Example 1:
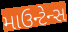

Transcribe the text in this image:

માઉન્ટેન્સ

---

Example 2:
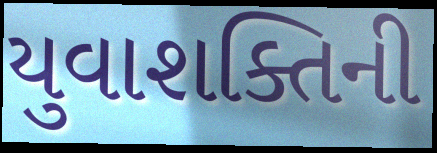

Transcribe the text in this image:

યુવાશક્તિની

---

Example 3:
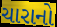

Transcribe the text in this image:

ચારાનો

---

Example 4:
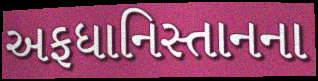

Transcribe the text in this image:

અફધાનિસ્તાનના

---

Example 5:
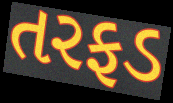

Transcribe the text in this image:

તરફડ